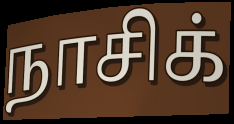
நாசிக்